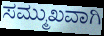
ಸಮ್ಮುಖವಾಗಿ